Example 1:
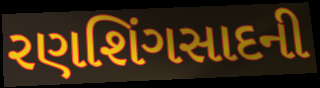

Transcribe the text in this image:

રણશિંગસાદની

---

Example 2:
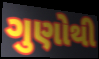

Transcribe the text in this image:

ગુણોથી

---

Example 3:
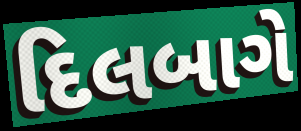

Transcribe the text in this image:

દિલબાગે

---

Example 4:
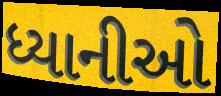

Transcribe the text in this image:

ધ્યાનીઓ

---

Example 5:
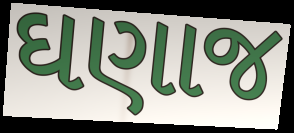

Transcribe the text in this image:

ઘણાજ